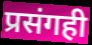
प्रसंगही